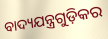
ବାଦ୍ୟଯନ୍ତ୍ରଗୁଡ଼ିକର